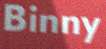
Binny